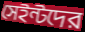
সেইন্টদের